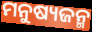
ମନୁଷ୍ୟଜନ୍ମ